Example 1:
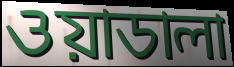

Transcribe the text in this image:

ওয়াডালা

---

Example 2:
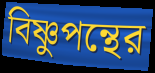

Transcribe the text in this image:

বিষ্ণুপন্থের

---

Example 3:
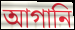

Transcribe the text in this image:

আগানি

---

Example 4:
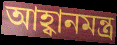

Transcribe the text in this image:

আহ্বানমন্ত্র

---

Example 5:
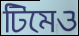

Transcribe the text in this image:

টিমেও